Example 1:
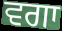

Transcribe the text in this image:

ਵਗਾ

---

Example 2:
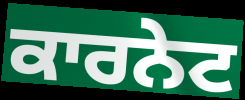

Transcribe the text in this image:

ਕਾਰਨੇਟ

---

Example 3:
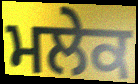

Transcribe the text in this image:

ਮਲੇਕ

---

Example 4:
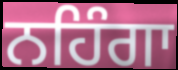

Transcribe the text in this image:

ਨਹਿੰਗਾ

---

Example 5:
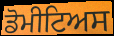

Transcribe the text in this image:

ਡੋਮੀਟਿਅਸ